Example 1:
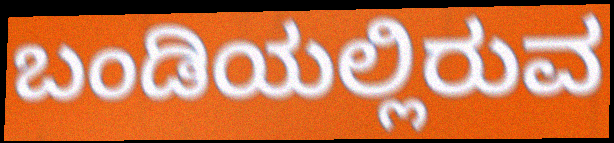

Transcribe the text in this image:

ಬಂಡಿಯಲ್ಲಿರುವ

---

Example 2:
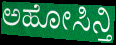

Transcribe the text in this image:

ಅಹೋಸಿನ್ತಿ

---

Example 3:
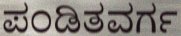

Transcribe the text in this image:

ಪಂಡಿತವರ್ಗ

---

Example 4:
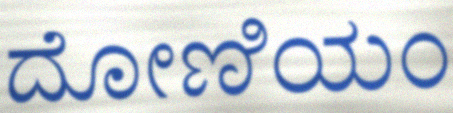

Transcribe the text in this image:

ದೋಣಿಯಂ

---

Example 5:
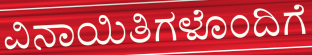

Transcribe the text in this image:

ವಿನಾಯಿತಿಗಳೊಂದಿಗೆ